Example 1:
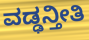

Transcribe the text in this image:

ವಡ್ಢನ್ತೀತಿ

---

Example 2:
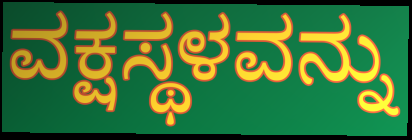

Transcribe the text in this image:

ವಕ್ಷಸ್ಥಳವನ್ನು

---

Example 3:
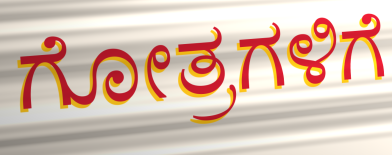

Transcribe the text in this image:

ಗೋತ್ರಗಳಿಗೆ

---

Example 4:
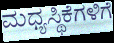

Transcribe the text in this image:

ಮಧ್ಯಸ್ಥಿಕೆಗಳಿಗೆ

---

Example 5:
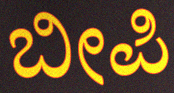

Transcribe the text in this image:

ಬೀಪಿ